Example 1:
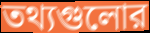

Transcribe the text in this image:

তথ্যগুলোর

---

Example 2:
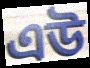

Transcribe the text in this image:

এউ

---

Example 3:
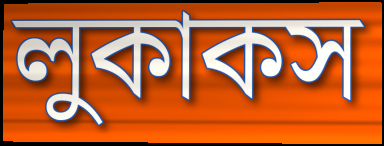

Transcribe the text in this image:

লুকাকস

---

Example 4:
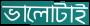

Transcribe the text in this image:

ভালোটাই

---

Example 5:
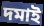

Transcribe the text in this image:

দমাই